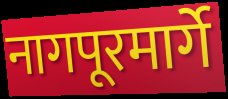
नागपूरमार्गे